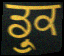
ਡ੍ਰੁਕ